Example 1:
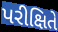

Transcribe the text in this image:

પરીક્ષિતે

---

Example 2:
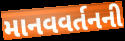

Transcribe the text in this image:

માનવવર્તનની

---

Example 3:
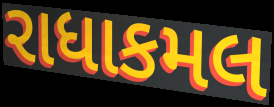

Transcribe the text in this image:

રાધાકમલ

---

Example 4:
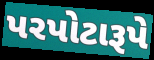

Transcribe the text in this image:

પરપોટારૂપે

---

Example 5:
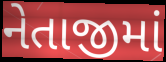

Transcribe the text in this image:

નેતાજીમાં